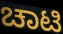
ಚಾಟಿ